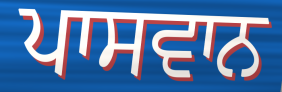
ਪਾਸਵਾਨ